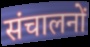
संचालनों